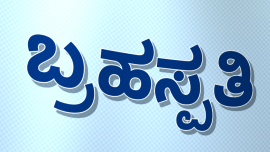
ಬ್ರಹಸ್ಪತಿ